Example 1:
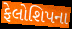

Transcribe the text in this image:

ફેલોશિપના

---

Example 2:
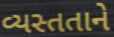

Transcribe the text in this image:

વ્યસ્તતાને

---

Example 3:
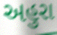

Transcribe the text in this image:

અહુરા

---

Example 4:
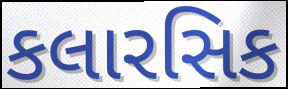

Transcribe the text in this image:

કલારસિક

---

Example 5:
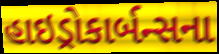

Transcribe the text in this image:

હાઇડ્રોકાર્બન્સના